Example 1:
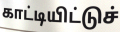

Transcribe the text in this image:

காட்டியிட்டுச்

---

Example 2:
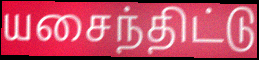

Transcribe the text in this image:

யசைந்திட்டு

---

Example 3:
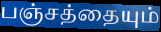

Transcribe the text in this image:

பஞ்சத்தையும்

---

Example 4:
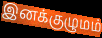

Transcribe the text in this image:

இனக்குழுமம்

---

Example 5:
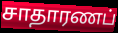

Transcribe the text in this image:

சாதாரணப்